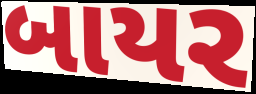
બાયર